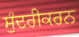
ਸੁੰਦਰੀਕਰਨ